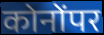
कोनोंपर